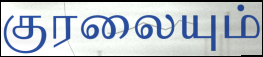
குரலையும்